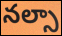
నల్సా